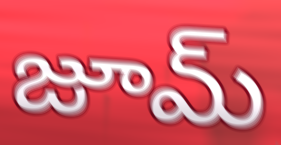
జూమ్